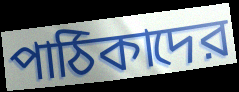
পাঠিকাদের